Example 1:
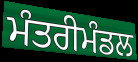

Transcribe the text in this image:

ਮੰਤਰੀਮੰਡਲ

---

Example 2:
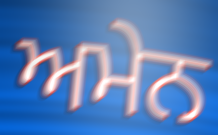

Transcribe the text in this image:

ਅਮੇਨ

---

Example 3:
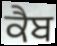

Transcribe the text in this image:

ਕੈਬ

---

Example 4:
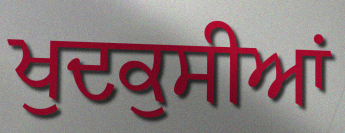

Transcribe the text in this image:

ਖੁਦਕੁਸੀਆਂ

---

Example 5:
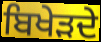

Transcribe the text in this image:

ਬਿਖੇੜਦੇ